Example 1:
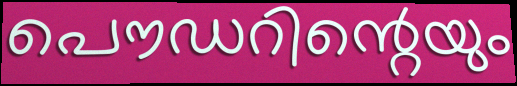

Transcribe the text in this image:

പൌഡറിന്റെയും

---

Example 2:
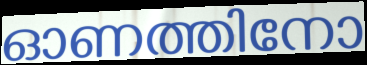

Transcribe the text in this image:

ഓണത്തിനോ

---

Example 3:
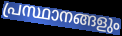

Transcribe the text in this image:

പ്രസ്ഥാനങ്ങളും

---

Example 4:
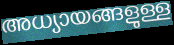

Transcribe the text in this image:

അധ്യായങ്ങളുള്ള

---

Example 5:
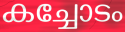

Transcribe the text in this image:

കച്ചോടം